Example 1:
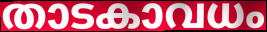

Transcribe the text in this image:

താടകാവധം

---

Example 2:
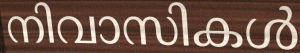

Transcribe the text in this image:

നിവാസികൾ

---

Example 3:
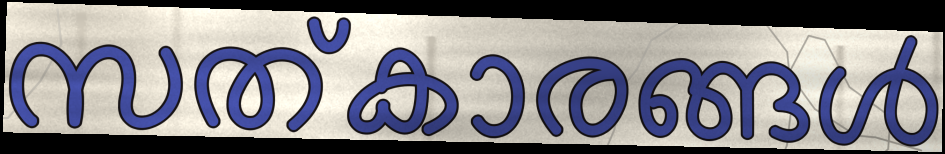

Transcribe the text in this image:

സത്കാരങ്ങൾ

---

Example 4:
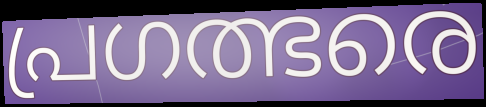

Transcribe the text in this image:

പ്രഗത്ഭരെ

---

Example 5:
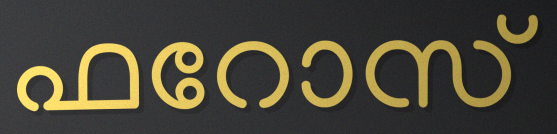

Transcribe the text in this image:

ഫറോസ്